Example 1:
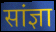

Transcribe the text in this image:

सांज्ञा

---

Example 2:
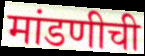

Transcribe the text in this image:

मांडणीची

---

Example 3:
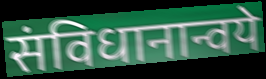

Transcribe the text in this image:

संविधानान्वये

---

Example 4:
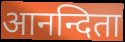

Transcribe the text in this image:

आनन्दिता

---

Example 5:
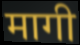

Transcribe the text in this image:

मागी